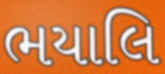
ભયાલિ